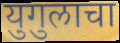
युगुलाचा